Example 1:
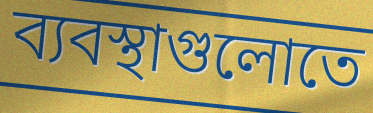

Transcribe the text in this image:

ব্যবস্থাগুলোতে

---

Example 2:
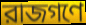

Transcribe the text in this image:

রাজগণে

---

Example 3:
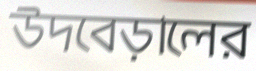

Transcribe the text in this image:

উদবেড়ালের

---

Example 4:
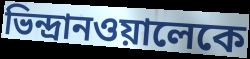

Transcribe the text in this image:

ভিন্দ্রানওয়ালেকে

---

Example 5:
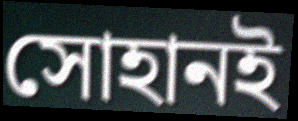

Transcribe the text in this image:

সোহানই